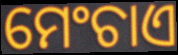
ମେଂଚାଏ